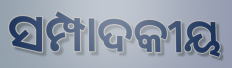
ସମ୍ପାଦକୀୟ